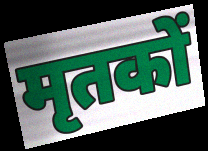
मृतकों